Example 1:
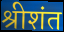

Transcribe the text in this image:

श्रीशंत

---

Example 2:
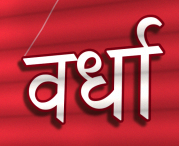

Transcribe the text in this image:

वर्धा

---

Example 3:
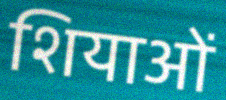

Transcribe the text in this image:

शियाओं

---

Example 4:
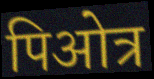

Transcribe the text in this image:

पिओत्र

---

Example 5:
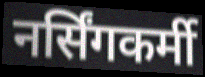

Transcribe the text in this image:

नर्सिंगकर्मी